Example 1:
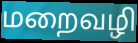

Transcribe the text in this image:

மறைவழி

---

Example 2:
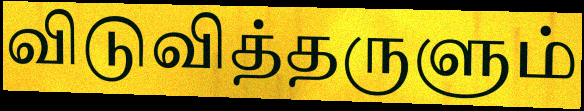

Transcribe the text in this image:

விடுவித்தருளும்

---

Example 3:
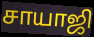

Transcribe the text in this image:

சாயாஜி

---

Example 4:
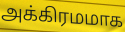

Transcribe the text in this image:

அக்கிரமமாக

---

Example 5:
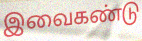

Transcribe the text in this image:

இவைகண்டு